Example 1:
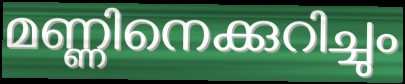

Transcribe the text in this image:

മണ്ണിനെക്കുറിച്ചും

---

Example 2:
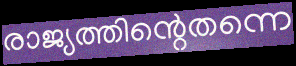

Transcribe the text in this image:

രാജ്യത്തിന്റെതന്നെ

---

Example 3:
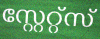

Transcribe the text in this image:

സ്റ്റേറ്റ്സ്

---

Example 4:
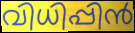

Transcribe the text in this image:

വിധിപ്പിൻ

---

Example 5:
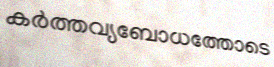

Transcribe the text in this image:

കർത്തവ്യബോധത്തോടെ